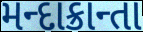
મન્દાક્રાન્તા